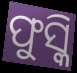
ଫୁସ୍କି